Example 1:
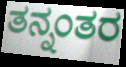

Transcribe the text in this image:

ತನ್ನಂತರ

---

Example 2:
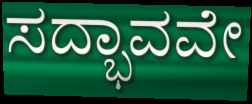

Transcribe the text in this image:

ಸದ್ಭಾವವೇ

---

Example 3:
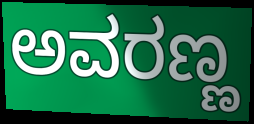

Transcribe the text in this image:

ಅವರಣ್ಣ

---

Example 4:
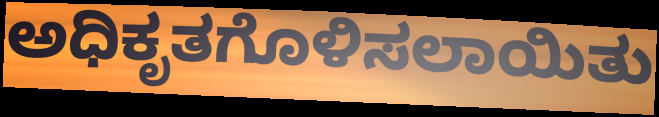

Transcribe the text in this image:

ಅಧಿಕೃತಗೊಳಿಸಲಾಯಿತು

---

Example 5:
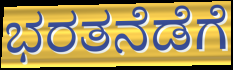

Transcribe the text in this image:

ಭರತನೆಡೆಗೆ